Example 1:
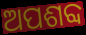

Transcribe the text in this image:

ଅପଶବ୍ଦ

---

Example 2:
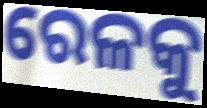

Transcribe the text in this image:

ରେଳକୁ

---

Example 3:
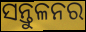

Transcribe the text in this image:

ସନ୍ତୁଳନର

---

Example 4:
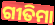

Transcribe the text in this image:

ଗୀତିମା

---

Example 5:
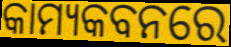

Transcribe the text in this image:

କାମ୍ୟକବନରେ